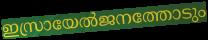
ഇസ്രായേൽജനത്തോടും